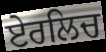
ਏਰਲਿਚ